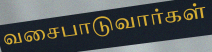
வசைபாடுவார்கள்